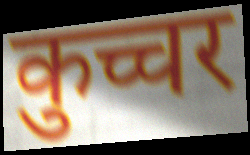
कुच्चर